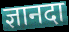
ज्ञानदा